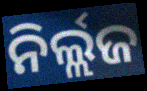
ନିର୍ଲ୍ଲଜ